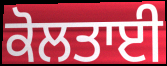
ਕੋਲਤਾਈ